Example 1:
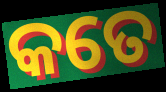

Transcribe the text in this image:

କତେ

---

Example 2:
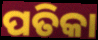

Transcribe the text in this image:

ପତିକା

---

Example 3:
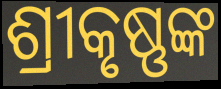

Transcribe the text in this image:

ଶ୍ରୀକୃଷ୍ଣଙ୍କ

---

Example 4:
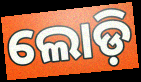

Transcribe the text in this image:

ଲୋଡ଼ି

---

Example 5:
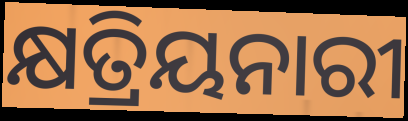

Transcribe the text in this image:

କ୍ଷତ୍ରିୟନାରୀ